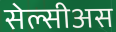
सेल्सीअस